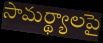
సామర్థ్యాలపై